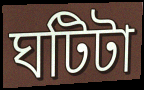
ঘটিটা